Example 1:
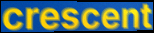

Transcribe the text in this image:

crescent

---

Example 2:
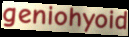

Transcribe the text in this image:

geniohyoid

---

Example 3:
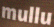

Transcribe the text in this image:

mullu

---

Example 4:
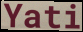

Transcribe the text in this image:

Yati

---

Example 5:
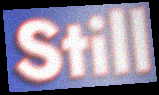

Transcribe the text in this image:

Still